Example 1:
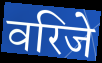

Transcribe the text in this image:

वरिजे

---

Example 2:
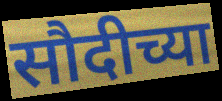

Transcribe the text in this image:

सौदीच्या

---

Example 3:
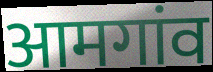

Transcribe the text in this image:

आमगांव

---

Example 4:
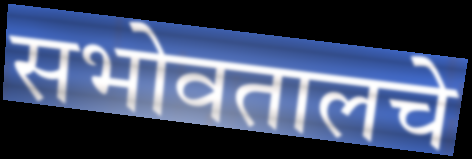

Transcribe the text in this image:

सभोवतालचे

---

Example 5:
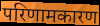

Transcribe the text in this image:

परिणामकारण